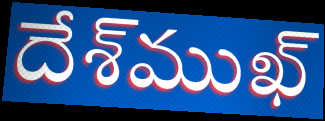
దేశ్‌ముఖ్